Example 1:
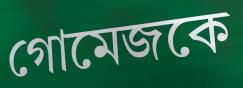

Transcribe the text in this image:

গোমেজকে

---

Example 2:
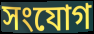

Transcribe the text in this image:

সংযোগ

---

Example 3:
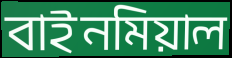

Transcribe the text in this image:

বাইনমিয়াল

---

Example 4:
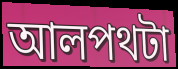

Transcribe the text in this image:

আলপথটা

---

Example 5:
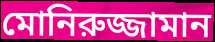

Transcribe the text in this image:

মোনিরুজ্জামান